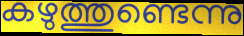
കഴുത്തുണ്ടെന്നു